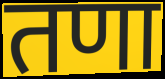
तणा